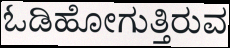
ಓಡಿಹೋಗುತ್ತಿರುವ